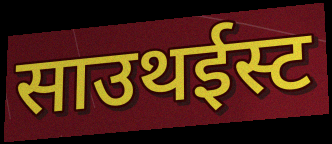
साउथईस्ट